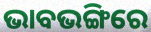
ଭାବଭଙ୍ଗିରେ